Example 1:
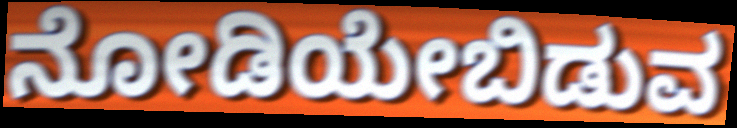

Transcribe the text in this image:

ನೋಡಿಯೇಬಿಡುವ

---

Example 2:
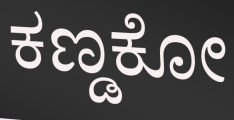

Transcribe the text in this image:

ಕಣ್ಡಕೋ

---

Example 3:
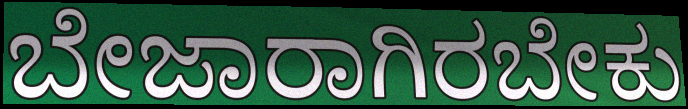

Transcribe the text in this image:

ಬೇಜಾರಾಗಿರಬೇಕು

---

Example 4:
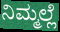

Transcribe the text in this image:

ನಿಮ್ಮಲ್ಲೆ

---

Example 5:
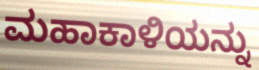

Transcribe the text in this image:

ಮಹಾಕಾಳಿಯನ್ನು